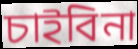
চাইবিনা